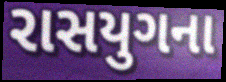
રાસયુગના